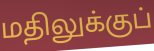
மதிலுக்குப்